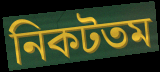
নিকটতম